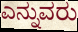
ಎನ್ನುವರು